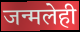
जन्मलेही